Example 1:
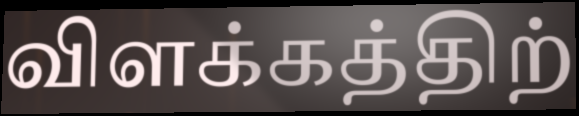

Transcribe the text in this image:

விளக்கத்திற்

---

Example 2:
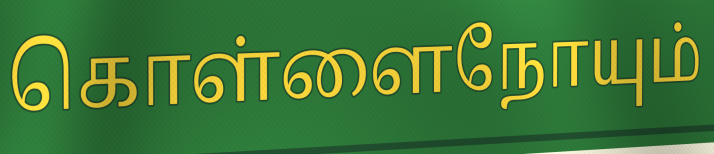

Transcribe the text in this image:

கொள்ளைநோயும்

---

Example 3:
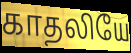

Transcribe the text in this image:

காதலியே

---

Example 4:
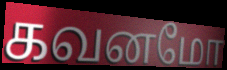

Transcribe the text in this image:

கவனமோ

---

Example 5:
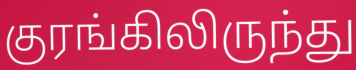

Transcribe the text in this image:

குரங்கிலிருந்து